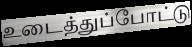
உடைத்துப்போட்டு